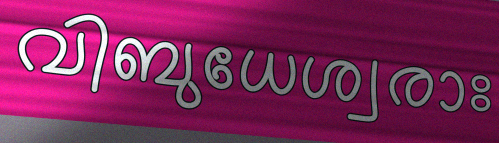
വിബുധേശ്വരാഃ